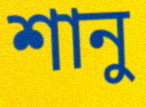
শানু